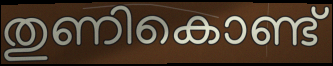
തുണികൊണ്ട്